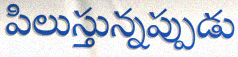
పిలుస్తున్నప్పుడు